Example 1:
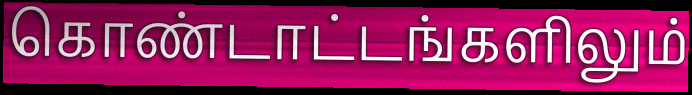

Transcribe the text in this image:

கொண்டாட்டங்களிலும்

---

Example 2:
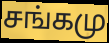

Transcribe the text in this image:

சங்கமு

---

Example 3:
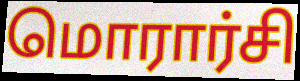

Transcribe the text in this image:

மொரார்சி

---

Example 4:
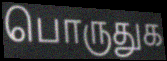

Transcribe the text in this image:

பொருதுக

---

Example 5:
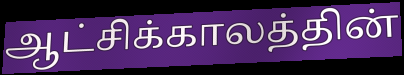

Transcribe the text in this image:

ஆட்சிக்காலத்தின்